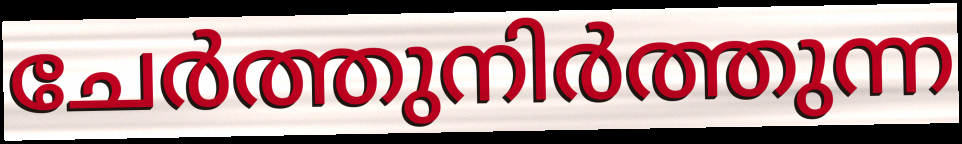
ചേർത്തുനിർത്തുന്ന